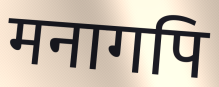
मनागपि